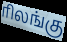
ரிலங்கு